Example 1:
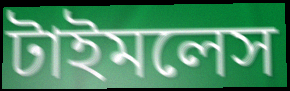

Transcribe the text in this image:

টাইমলেস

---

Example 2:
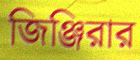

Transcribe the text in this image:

জিঞ্জিরার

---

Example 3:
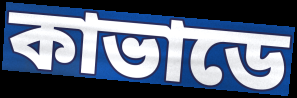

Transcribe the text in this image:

কাভাডে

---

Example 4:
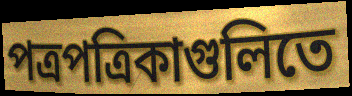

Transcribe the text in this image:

পত্রপত্রিকাগুলিতে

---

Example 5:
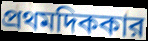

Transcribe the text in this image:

প্রথমদিককার